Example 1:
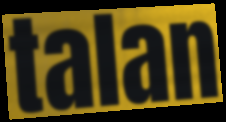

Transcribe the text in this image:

talan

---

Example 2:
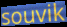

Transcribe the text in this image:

souvik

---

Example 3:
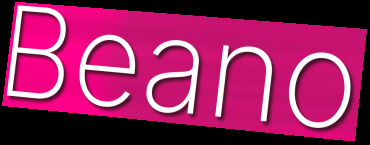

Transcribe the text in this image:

Beano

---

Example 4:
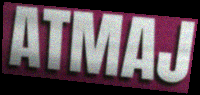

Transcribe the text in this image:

ATMAJ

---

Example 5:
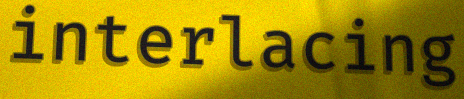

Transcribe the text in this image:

interlacing